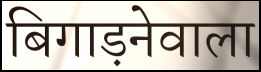
बिगाड़नेवाला